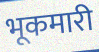
भूकमारी